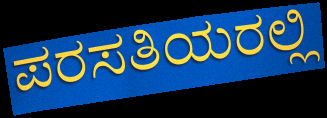
ಪರಸತಿಯರಲ್ಲಿ